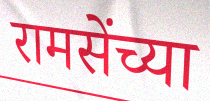
रामसेंच्या